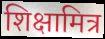
शिक्षामित्र